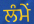
ਲੰਮੇਂ